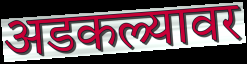
अडकल्यावर